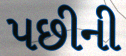
પછીની